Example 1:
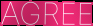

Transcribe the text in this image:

AGREE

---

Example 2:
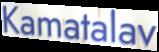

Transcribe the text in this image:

Kamatalav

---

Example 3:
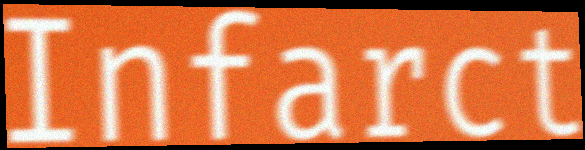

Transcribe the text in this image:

Infarct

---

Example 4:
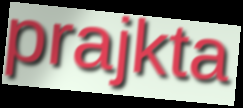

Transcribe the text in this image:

prajkta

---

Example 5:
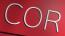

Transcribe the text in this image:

COR